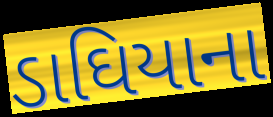
ડાઘિયાના